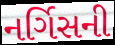
નર્ગિસની